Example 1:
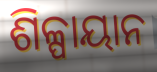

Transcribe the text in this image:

ଶିଳ୍ପାୟାନ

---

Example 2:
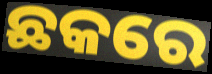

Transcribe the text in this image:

ଛକରେ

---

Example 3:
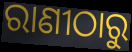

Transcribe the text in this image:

ରାଣୀଠାରୁ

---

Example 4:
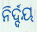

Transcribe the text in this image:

ନିର୍ଦ୍ଦୟ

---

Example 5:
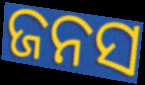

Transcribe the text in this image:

ଜନସ